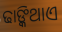
ଢାଙ୍କିଥାଏ